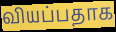
வியப்பதாக